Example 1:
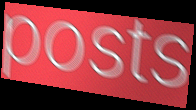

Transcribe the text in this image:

posts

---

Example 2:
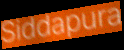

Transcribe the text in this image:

Siddapura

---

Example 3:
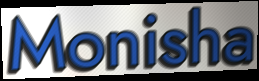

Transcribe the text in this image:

Monisha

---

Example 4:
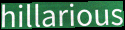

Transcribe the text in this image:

hillarious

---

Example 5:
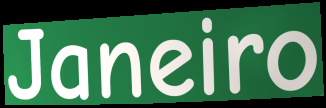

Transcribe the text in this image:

Janeiro